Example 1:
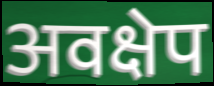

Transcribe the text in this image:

अवक्षेप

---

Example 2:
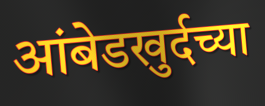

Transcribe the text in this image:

आंबेडखुर्दच्या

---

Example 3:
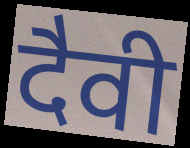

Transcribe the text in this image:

दैवी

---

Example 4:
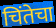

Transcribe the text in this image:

चिंतेचा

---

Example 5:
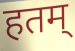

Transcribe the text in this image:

हतम्